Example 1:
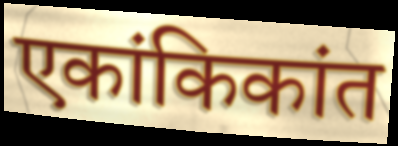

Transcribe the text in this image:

एकांकिकांत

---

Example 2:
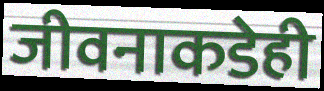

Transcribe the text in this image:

जीवनाकडेही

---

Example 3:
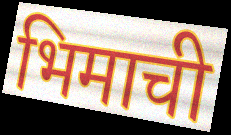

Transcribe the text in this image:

भिमाची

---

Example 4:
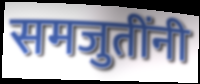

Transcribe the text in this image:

समजुतींनी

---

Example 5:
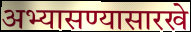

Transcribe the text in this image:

अभ्यासण्यासारखे